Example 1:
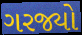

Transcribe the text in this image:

ગરજ્યો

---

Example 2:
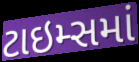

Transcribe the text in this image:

ટાઇમ્સમાં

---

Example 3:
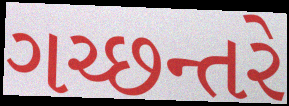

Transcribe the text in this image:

ગચ્છન્તરે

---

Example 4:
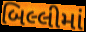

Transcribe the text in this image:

બિલ્લીમાં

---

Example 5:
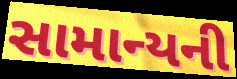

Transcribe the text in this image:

સામાન્યની